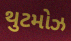
થુટમોઝ